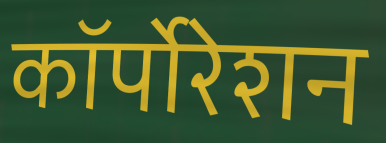
कॉर्पोरेशन